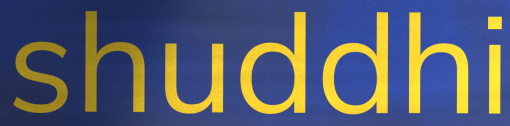
shuddhi